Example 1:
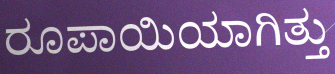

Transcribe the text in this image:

ರೂಪಾಯಿಯಾಗಿತ್ತು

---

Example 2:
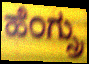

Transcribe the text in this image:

ಹೆಂಗ್ಸ್ರು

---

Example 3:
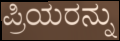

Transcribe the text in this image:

ಪ್ರಿಯರನ್ನು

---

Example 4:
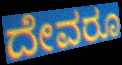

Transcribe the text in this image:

ದೇವರೂ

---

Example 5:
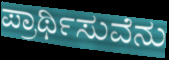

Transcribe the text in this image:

ಪ್ರಾರ್ಥಿಸುವೆನು